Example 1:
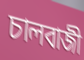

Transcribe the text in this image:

চালবাজী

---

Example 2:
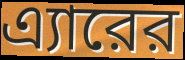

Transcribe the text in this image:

এ্যারের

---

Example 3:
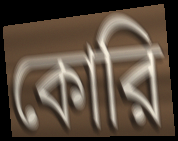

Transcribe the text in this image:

কোরি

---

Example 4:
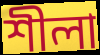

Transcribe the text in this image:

শীলা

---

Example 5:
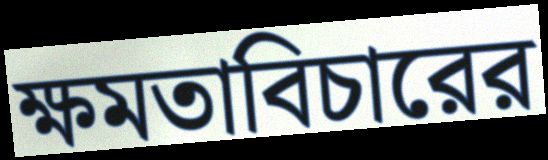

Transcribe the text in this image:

ক্ষমতাবিচারের